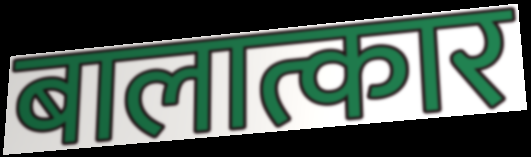
बालात्कार